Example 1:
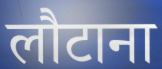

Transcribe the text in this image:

लौटाना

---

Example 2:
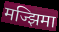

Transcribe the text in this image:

मज्झिमा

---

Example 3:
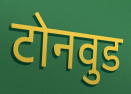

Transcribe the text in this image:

टोनवुड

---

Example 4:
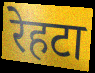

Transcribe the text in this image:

रेहटा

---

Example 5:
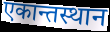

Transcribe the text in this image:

एकान्तस्थान